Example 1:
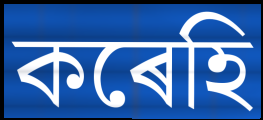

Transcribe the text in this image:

কৰেহি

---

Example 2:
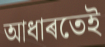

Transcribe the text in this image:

আধাৰতেই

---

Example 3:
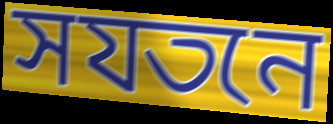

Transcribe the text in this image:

সযতনে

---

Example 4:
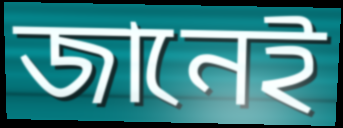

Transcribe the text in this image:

জানেই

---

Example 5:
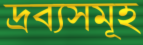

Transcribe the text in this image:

দ্ৰব্যসমূহ